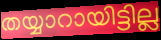
തയ്യാറായിട്ടില്ല